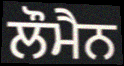
ਲੌਮੈਨ